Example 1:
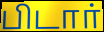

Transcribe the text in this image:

பிடார்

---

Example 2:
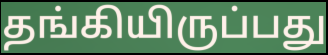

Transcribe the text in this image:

தங்கியிருப்பது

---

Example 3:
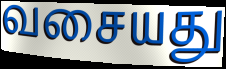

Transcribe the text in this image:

வசையது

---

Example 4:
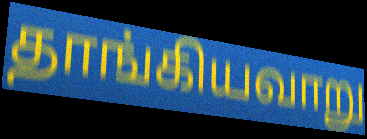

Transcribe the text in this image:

தாங்கியவாறு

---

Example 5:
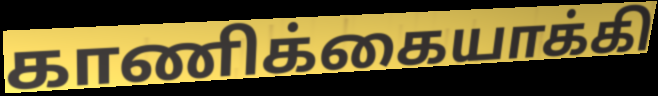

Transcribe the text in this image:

காணிக்கையாக்கி